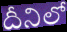
దీనిలో